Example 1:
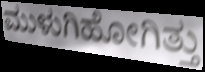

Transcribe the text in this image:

ಮುಳುಗಿಹೋಗಿತ್ತು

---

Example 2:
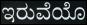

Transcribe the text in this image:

ಇರುವೆಯೊ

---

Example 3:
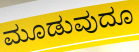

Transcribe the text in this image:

ಮೂಡುವುದೂ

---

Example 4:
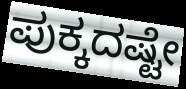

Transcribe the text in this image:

ಪುಕ್ಕದಷ್ಟೇ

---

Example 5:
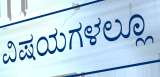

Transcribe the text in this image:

ವಿಷಯಗಳಲ್ಲೂ